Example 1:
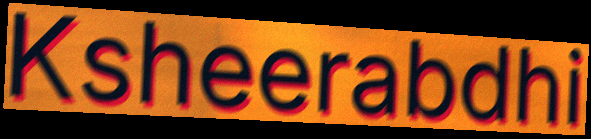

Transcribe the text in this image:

Ksheerabdhi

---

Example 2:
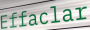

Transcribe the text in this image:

Effaclar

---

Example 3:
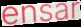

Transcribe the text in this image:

ensar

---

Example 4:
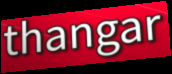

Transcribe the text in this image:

thangar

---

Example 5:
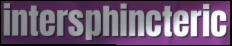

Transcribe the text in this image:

intersphincteric